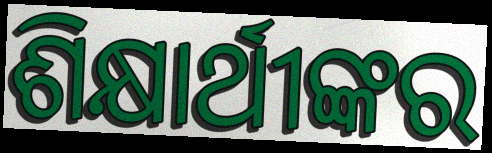
ଶିକ୍ଷାର୍ଥୀଙ୍କର